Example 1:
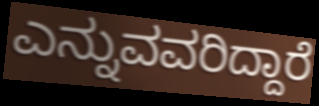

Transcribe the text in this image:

ಎನ್ನುವವರಿದ್ದಾರೆ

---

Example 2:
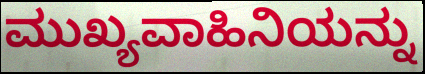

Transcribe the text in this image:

ಮುಖ್ಯವಾಹಿನಿಯನ್ನು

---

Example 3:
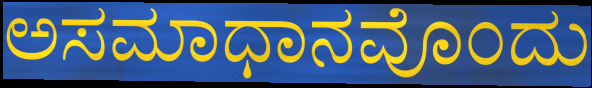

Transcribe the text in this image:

ಅಸಮಾಧಾನವೊಂದು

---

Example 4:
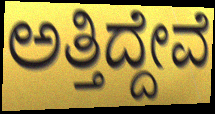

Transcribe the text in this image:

ಅತ್ತಿದ್ದೇವೆ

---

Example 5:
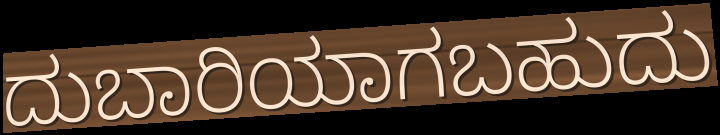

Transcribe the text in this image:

ದುಬಾರಿಯಾಗಬಹುದು